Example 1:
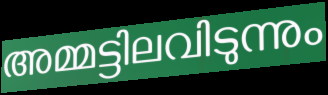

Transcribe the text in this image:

അമ്മട്ടിലവിടുന്നും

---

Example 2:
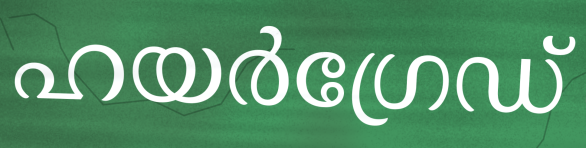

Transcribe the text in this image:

ഹയർഗ്രേഡ്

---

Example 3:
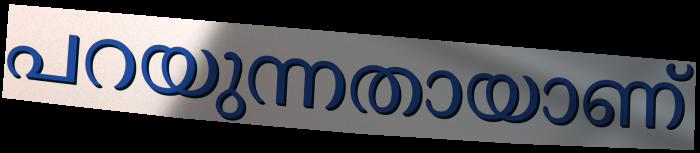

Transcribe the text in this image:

പറയുന്നതായാണ്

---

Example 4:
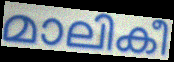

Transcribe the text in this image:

മാലികീ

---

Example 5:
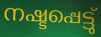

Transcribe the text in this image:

നഷ്ടപ്പെട്ടു്